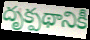
దృక్పథానికీ